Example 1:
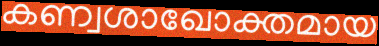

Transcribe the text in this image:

കണ്വശാഖോക്തമായ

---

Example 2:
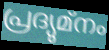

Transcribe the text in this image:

പ്രദ്യുമ്നം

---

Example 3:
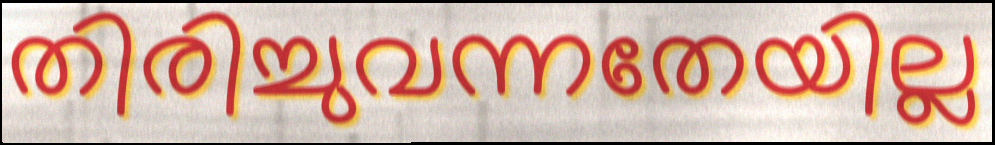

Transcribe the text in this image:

തിരിച്ചുവന്നതേയില്ല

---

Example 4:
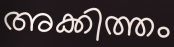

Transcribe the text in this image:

അക്കിത്തം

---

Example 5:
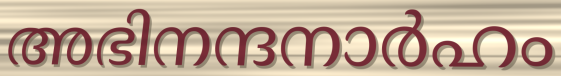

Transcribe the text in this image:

അഭിനന്ദനാർഹം